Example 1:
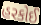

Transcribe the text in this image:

હરકોઈ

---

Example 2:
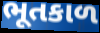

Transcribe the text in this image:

ભૂતકાળ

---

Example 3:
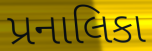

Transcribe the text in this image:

પ્રનાલિકા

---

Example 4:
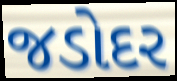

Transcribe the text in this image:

જડોદર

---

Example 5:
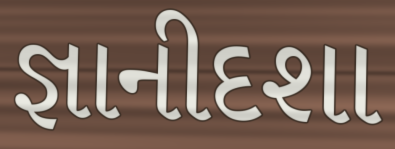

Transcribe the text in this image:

જ્ઞાનીદશા